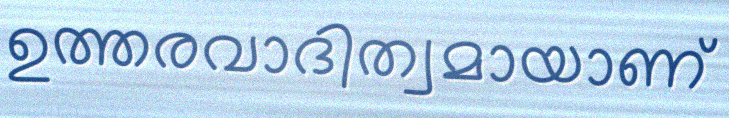
ഉത്തരവാദിത്വമായാണ്